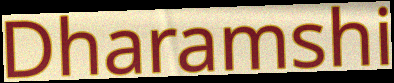
Dharamshi